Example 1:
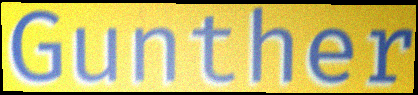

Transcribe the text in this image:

Gunther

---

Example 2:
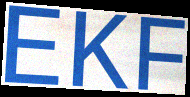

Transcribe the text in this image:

EKF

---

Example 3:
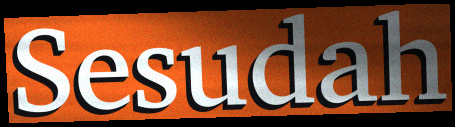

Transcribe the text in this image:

Sesudah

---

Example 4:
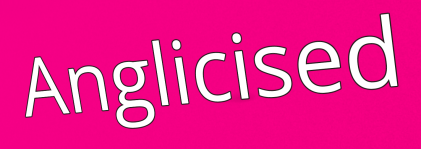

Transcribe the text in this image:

Anglicised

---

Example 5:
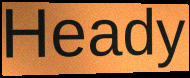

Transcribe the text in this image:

Heady